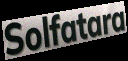
Solfatara